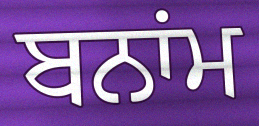
ਬਨਾਂਮ